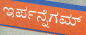
ಇರ್ಪನ್ನೆಗಮ್